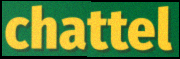
chattel